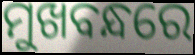
ମୁଖବନ୍ଧରେ